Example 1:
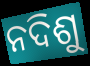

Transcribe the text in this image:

ନଦିଶୁ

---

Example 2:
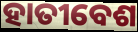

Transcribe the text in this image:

ହାତୀବେଶ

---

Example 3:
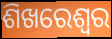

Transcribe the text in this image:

ଶିଖରେଶ୍ୱର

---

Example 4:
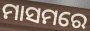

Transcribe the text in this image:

ମାସମରେ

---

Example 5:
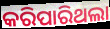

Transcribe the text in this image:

କରିପାରିଥଲା